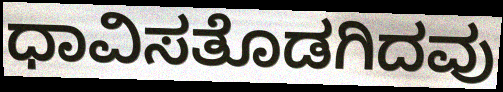
ಧಾವಿಸತೊಡಗಿದವು